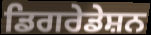
ਡਿਗਰੇਡੇਸ਼ਨ